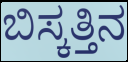
ಬಿಸ್ಕತ್ತಿನ